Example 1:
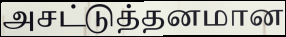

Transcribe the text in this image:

அசட்டுத்தனமான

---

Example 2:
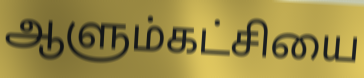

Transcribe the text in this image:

ஆளும்கட்சியை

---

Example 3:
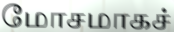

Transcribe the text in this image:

மோசமாகச்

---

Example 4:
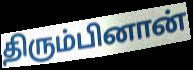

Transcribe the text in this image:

திரும்பினான்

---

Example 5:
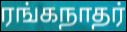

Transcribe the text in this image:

ரங்கநாதர்